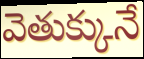
వెతుక్కునే